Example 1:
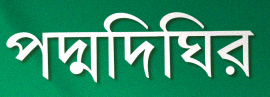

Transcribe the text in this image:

পদ্মদিঘির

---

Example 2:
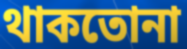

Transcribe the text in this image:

থাকতোনা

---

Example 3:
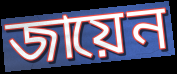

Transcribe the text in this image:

জায়েন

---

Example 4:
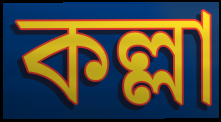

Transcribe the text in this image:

কল্লা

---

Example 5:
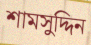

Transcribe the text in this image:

শামসুদ্দিন